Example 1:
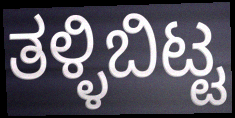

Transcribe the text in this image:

ತಳ್ಳಿಬಿಟ್ಟ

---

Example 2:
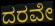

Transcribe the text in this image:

ದರವೇ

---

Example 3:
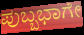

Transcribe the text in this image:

ಪುಬ್ಬಭಾಗೇ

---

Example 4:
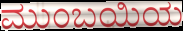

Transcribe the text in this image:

ಮುಂಬಯಿಯ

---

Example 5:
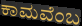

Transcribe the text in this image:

ಕಾಮವೆಂಬ